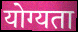
योग्‍यता